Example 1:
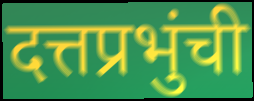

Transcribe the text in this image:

दत्तप्रभुंची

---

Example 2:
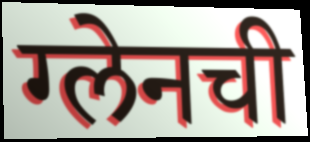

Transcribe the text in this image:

ग्लेनची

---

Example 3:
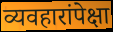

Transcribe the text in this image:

व्यवहारांपेक्षा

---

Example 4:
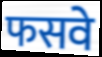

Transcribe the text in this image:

फसवे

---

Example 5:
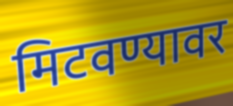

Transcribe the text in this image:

मिटवण्यावर